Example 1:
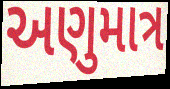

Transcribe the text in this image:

અણુમાત્ર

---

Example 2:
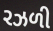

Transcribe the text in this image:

રઝળી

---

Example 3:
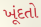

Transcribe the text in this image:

ખૂંદતો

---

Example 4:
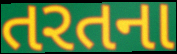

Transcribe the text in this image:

તરતના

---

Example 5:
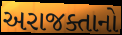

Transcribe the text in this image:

અરાજક્તાનો